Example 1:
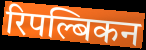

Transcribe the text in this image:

रिपल्बिकन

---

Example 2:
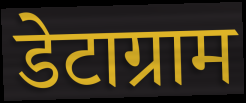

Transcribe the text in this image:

डेटाग्राम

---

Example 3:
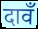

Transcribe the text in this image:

दावँ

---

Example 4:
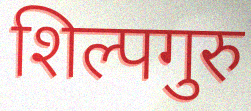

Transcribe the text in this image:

शिल्पगुरु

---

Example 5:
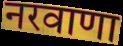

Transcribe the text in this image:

नरवाणा